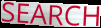
SEARCH